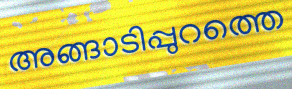
അങ്ങാടിപ്പുറത്തെ